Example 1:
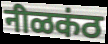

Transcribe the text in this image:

नीळकंठ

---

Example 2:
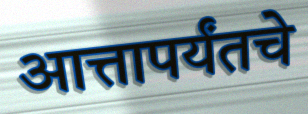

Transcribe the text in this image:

आत्तापर्यंतचे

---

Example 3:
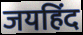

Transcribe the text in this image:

जयहिंद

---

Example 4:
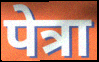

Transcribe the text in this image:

पेत्रा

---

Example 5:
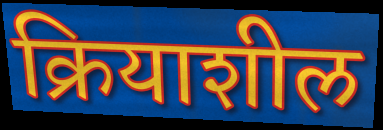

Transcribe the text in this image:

क्रियाशील